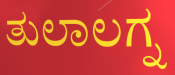
ತುಲಾಲಗ್ನ